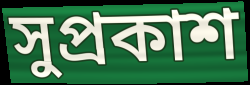
সুপ্রকাশ